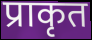
प्राकृत